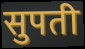
सुपती